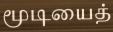
மூடியைத்